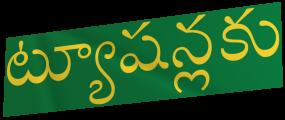
ట్యూషన్లకు